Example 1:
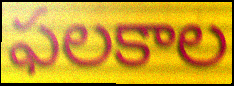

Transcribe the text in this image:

ఫలకాల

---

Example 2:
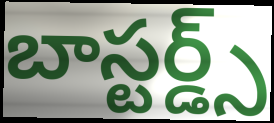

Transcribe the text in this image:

బాస్టర్డ్స్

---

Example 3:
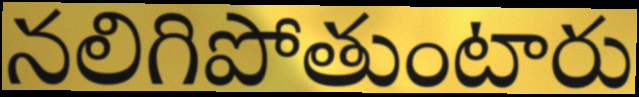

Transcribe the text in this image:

నలిగిపోతుంటారు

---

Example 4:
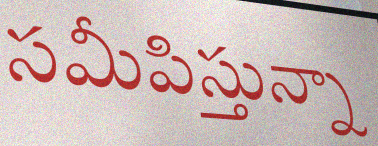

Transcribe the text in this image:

సమీపిస్తున్నా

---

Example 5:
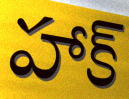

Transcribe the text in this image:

హాక్